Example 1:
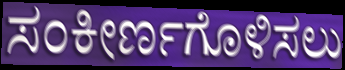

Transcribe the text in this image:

ಸಂಕೀರ್ಣಗೊಳಿಸಲು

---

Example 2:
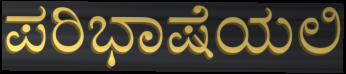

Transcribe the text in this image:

ಪರಿಭಾಷೆಯಲಿ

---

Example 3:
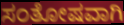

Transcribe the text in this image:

ಸಂತೋಷವಾಗಿ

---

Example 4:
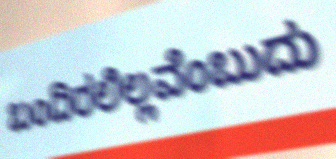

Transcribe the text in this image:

ಬಂದಿರಲಿಲ್ಲವೆಂಬುದು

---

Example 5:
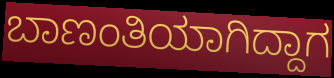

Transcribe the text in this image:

ಬಾಣಂತಿಯಾಗಿದ್ದಾಗ